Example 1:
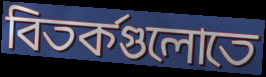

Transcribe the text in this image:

বিতর্কগুলোতে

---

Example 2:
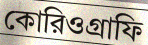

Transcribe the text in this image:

কোরিওগ্রাফি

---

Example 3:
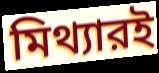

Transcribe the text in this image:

মিথ্যারই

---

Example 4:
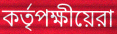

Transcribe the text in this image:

কর্তৃপক্ষীয়েরা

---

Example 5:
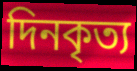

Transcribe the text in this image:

দিনকৃত্য